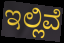
ಇಲ್ಲಿವೆ